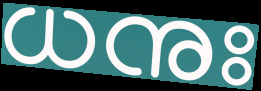
ധനുഃ